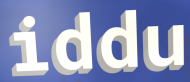
iddu